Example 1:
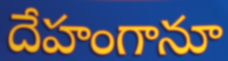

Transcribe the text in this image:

దేహంగానూ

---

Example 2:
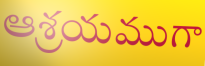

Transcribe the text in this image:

ఆశ్రయముగా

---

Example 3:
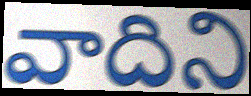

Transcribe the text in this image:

వాదిని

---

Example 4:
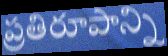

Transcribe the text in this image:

ప్రతిరూపాన్ని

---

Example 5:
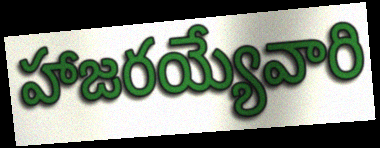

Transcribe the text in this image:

హాజరయ్యేవారి